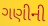
ગણીની